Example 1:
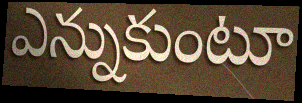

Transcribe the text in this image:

ఎన్నుకుంటూ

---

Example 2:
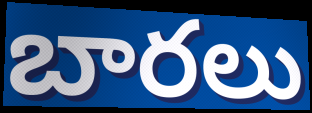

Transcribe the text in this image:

బారలు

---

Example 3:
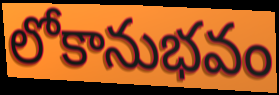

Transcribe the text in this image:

లోకానుభవం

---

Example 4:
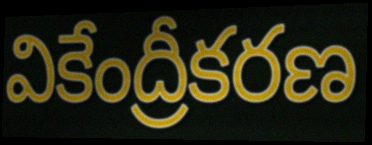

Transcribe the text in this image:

వికేంద్రీకరణ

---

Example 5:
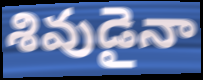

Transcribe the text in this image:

శివుడైనా